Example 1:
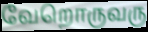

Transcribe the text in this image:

வேறொருவரு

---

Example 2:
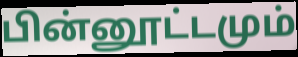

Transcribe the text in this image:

பின்னூட்டமும்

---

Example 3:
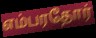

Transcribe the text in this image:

எம்பரதோர்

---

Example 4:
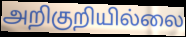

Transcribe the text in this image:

அறிகுறியில்லை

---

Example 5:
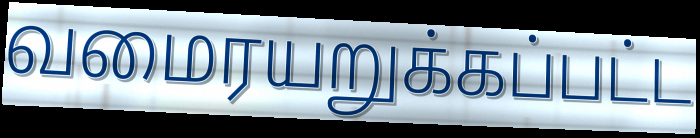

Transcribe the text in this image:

வமைரயறுக்கப்பட்ட